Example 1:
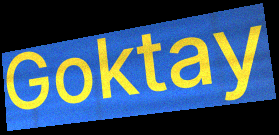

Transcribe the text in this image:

Goktay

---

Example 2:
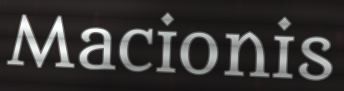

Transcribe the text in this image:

Macionis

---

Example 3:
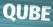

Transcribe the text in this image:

QUBE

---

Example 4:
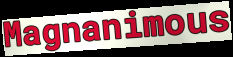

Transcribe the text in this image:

Magnanimous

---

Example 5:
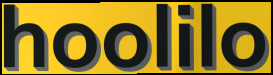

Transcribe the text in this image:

hoolilo